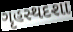
ગૃહસ્થદશા